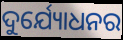
ଦୁର୍ଯ୍ୟୋଧନର